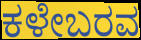
ಕಳೇಬರವ